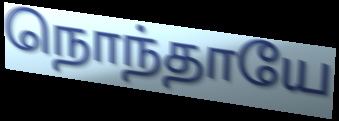
நொந்தாயே